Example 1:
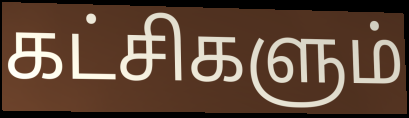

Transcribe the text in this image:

கட்சிகளும்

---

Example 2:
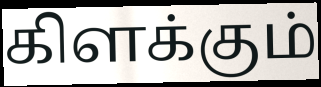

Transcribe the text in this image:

கிளக்கும்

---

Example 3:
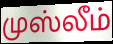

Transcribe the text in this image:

முஸ்லீம்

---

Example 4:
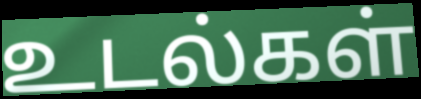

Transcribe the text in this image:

உடல்கள்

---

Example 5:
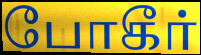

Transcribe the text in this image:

போகீர்